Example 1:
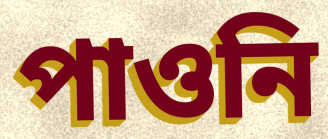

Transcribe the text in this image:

পাওনি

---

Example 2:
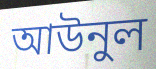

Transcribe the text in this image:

আউনুল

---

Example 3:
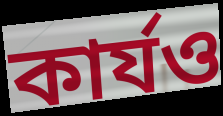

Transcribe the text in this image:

কার্যও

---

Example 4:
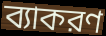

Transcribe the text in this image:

ব্যাকরণ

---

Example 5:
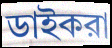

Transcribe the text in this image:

ডাইকরা